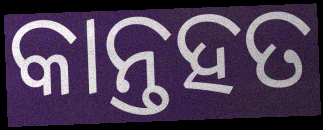
କାନ୍ତହତ